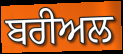
ਬਰੀਅਲ